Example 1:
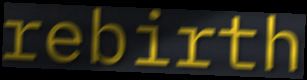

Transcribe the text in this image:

rebirth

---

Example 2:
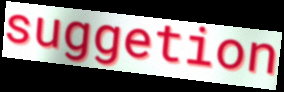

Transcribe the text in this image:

suggetion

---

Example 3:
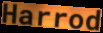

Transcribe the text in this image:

Harrod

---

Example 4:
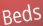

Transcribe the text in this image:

Beds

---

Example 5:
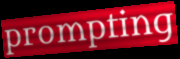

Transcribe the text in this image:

prompting